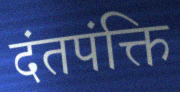
दंतपंक्ति